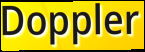
Doppler